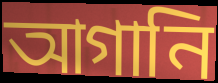
আগানি